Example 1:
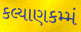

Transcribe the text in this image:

કલ્યાણકમ્મં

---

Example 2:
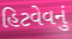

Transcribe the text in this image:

હિટવેવનું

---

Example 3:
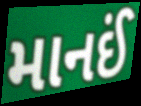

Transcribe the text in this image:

માનઈં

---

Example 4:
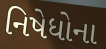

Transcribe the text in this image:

નિષેધોના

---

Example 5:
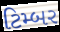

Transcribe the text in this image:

ટિમ્બર